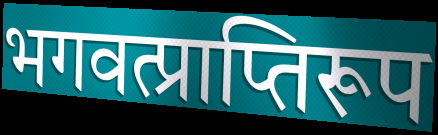
भगवत्प्राप्तिरूप